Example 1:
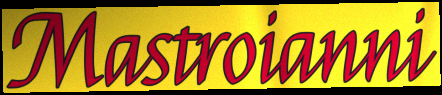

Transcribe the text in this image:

Mastroianni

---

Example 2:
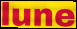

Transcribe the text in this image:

lune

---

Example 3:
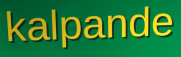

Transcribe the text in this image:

kalpande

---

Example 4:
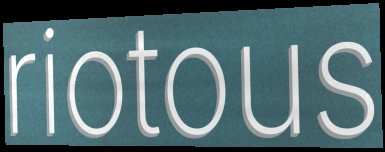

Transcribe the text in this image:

riotous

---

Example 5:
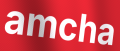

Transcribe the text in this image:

amcha